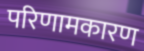
परिणामकारण